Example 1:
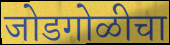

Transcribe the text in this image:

जोडगोळीचा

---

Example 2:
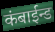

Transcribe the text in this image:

कंबाईन्ड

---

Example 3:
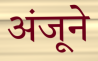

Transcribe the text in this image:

अंजूने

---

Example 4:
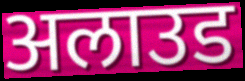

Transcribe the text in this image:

अलाउड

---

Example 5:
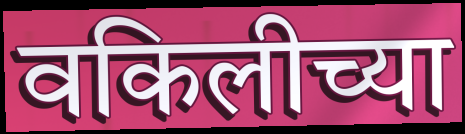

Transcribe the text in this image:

वकिलीच्या